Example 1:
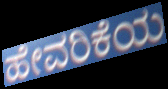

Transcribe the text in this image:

ಹೇವರಿಕೆಯ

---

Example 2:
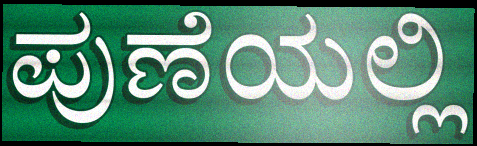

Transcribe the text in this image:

ಪುಣೆಯಲ್ಲಿ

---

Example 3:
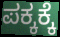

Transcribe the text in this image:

ಪಕ್ಕಕ್ಕೆ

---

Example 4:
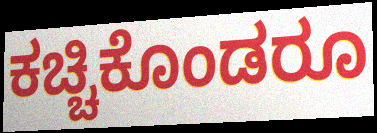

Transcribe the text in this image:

ಕಚ್ಚಿಕೊಂಡರೂ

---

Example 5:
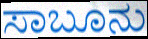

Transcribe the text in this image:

ಸಾಬೂನು